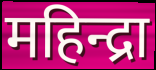
महिन्द्रा